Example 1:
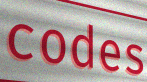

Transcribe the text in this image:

codes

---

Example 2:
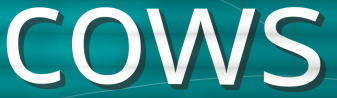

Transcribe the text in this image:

cows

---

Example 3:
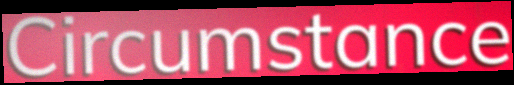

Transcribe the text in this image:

Circumstance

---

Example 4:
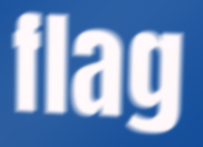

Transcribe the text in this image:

flag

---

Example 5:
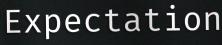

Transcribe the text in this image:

Expectation